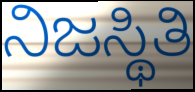
ನಿಜಸ್ಥಿತಿ